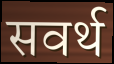
सवर्थ